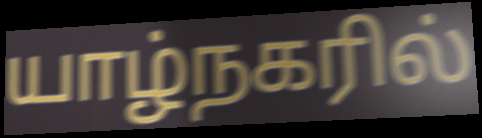
யாழ்நகரில்